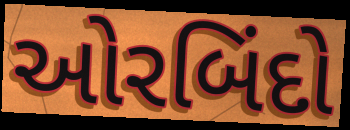
ઓરબિંદો